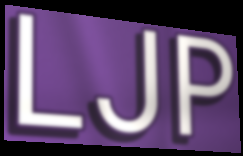
LJP